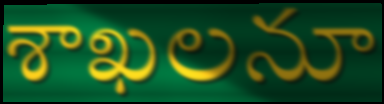
శాఖలనూ